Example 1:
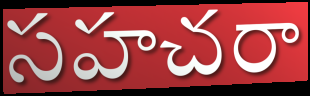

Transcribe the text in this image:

సహచరా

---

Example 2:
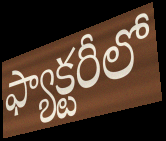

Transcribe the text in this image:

ఫ్యాక్టరీలో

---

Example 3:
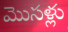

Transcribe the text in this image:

మొసళ్లు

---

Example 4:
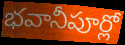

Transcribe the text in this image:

భవానీపూర్లో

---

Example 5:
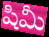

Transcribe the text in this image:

షిమీ